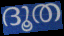
ദൂത